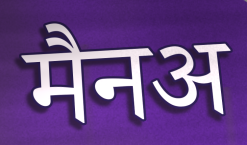
मैनअ